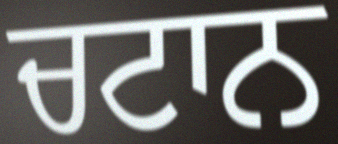
ਚਟਾਨ